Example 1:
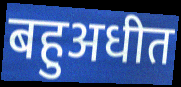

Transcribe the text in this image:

बहुअधीत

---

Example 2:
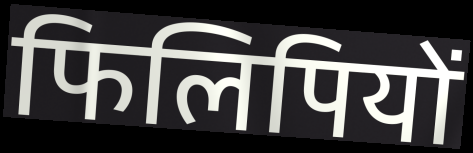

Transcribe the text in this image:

फिलिपियों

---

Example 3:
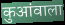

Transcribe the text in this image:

कुआंवाला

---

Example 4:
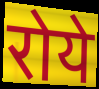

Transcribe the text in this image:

रोये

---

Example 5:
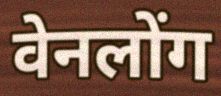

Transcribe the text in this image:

वेनलोंग